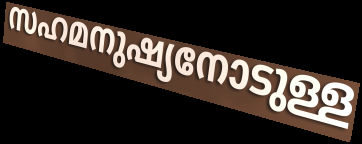
സഹമനുഷ്യനോടുള്ള